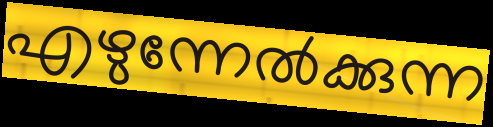
എഴുന്നേൽക്കുന്ന